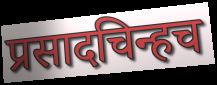
प्रसादचिन्हच